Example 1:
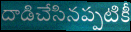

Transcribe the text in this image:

దాడిచేసినప్పటికీ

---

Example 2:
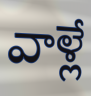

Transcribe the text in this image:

వాళ్లే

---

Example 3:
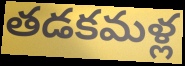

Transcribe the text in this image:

తడకమళ్ల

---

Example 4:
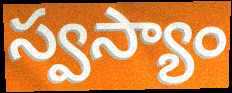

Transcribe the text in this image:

స్వస్యాం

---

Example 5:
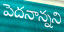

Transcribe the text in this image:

పెదనాన్నని